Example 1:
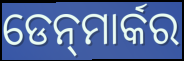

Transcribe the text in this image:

ଡେନ୍‍ମାର୍କର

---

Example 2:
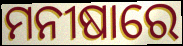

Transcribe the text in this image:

ମନୀଷାରେ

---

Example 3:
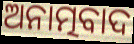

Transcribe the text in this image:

ଅନାତ୍ମବାଦ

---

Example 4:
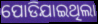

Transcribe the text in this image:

ପୋଡିଯାଇଥିଲା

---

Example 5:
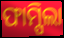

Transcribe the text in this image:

ଫାମ୍ପିଲା